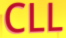
CLL